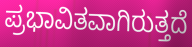
ಪ್ರಭಾವಿತವಾಗಿರುತ್ತದೆ